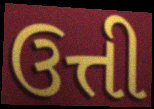
ઉત્તી